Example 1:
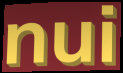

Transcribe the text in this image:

nui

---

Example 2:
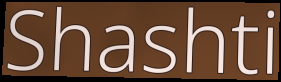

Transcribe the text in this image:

Shashti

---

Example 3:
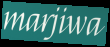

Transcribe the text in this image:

marjiwa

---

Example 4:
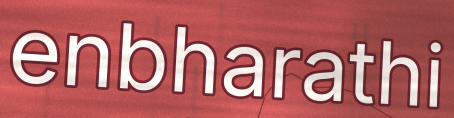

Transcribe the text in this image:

enbharathi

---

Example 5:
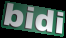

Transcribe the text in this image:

bidi